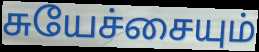
சுயேச்சையும்